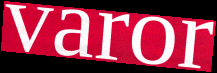
varor